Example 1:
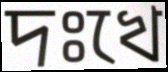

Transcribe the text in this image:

দঃখে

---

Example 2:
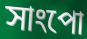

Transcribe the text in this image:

সাংপো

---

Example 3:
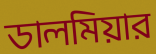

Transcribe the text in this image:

ডালমিয়ার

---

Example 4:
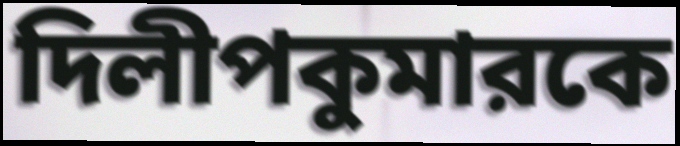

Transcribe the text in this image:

দিলীপকুমারকে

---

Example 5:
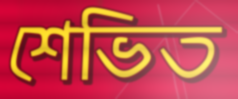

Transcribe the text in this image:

শেভিত